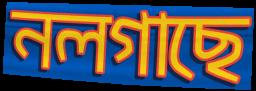
নলগাছে